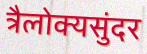
त्रैलोक्यसुंदर